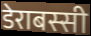
डेराबस्सी